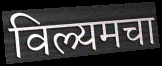
विल्यमचा